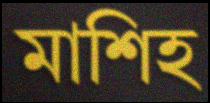
মাশিহ